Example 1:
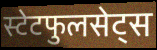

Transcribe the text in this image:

स्टेटफुलसेट्स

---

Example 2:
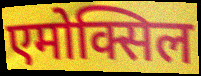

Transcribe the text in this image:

एमोक्सिल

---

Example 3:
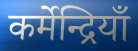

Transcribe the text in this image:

कर्मेन्द्रियाँ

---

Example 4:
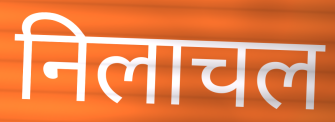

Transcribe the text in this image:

निलाचल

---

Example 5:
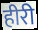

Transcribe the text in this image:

हीरी